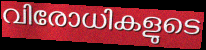
വിരോധികളുടെ